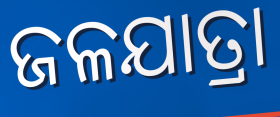
ଜଳଯାତ୍ରା